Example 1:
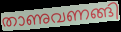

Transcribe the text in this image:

താണുവണങ്ങി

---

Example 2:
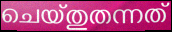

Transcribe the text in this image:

ചെയ്തുതന്നത്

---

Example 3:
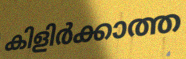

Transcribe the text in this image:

കിളിർക്കാത്ത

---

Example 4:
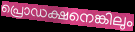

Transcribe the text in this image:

പ്രൊഡക്ഷനെങ്കിലും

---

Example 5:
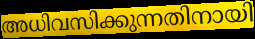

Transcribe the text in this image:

അധിവസിക്കുന്നതിനായി